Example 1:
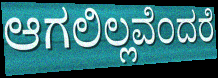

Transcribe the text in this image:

ಆಗಲಿಲ್ಲವೆಂದರೆ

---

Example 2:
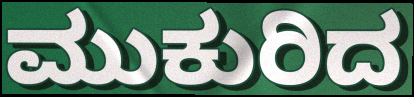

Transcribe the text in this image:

ಮುಕುರಿದ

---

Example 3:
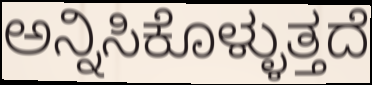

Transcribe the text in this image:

ಅನ್ನಿಸಿಕೊಳ್ಳುತ್ತದೆ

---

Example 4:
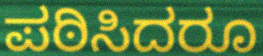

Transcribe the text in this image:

ಪಠಿಸಿದರೂ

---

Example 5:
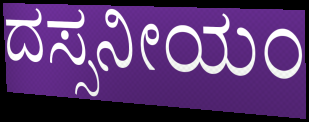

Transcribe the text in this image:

ದಸ್ಸನೀಯಂ